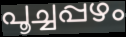
പൂച്ചപ്പഴം